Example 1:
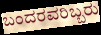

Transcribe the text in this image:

ಬಂದರವರಿಬ್ಬರು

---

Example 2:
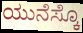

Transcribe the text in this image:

ಯುನೆಸ್ಕೊ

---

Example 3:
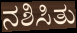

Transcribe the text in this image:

ನಶಿಸಿತು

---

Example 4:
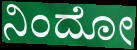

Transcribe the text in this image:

ನಿಂದೋ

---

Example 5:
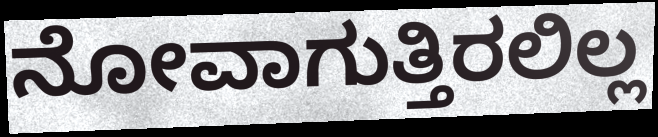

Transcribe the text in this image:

ನೋವಾಗುತ್ತಿರಲಿಲ್ಲ